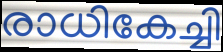
രാധികേച്ചി